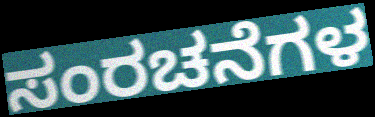
ಸಂರಚನೆಗಳ